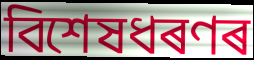
বিশেষধৰণৰ